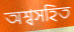
অশ্বসহিত